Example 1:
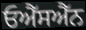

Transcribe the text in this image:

ਓਐੱਸਐੱਨ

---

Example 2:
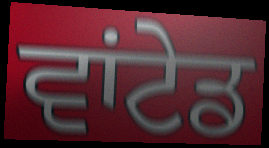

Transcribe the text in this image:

ਵਾਂਟੇਡ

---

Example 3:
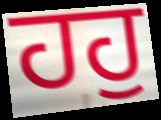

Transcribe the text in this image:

ਹਹੁ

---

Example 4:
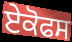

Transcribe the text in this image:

ਏਕੋਫਸ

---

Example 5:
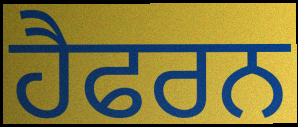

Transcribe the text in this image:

ਹੈਫਰਨ